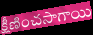
క్షీణించసాగాయి